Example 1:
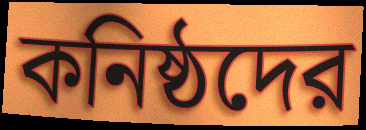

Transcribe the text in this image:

কনিষ্ঠদের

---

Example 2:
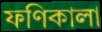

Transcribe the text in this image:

ফণিকালা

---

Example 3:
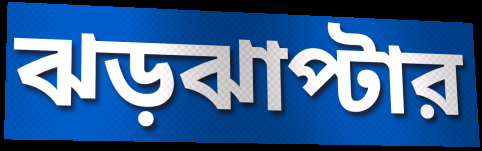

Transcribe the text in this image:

ঝড়ঝাপ্টার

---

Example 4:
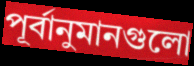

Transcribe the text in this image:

পূর্বানুমানগুলো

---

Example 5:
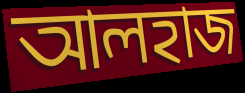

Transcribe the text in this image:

আলহাজ